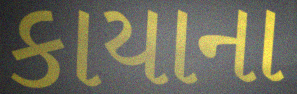
કાયાના